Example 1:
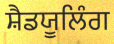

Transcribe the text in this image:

ਸ਼ੈਡਯੂਲਿੰਗ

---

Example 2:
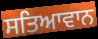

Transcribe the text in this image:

ਸਤਿਆਵਾਨ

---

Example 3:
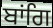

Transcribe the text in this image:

ਬਾਂਗਿ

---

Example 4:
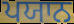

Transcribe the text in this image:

ਪਯਾਨ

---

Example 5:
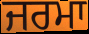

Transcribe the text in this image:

ਜਰਮਾ